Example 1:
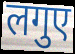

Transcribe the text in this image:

लगुए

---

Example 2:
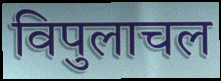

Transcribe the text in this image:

विपुलाचल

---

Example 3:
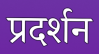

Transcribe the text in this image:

प्रदर्शन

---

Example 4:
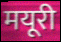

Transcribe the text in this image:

मयूरी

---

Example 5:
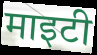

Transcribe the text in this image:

माइटी